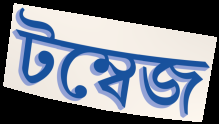
টম্বেজ